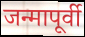
जन्मापूर्वी